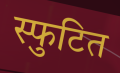
स्फुटित